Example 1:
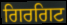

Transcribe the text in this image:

ਗਿਰਗਿਟ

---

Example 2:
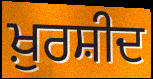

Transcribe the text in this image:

ਖ਼ੁਰਸ਼ੀਦ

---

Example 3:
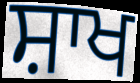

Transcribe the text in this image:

ਸ਼ਾਖ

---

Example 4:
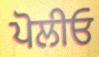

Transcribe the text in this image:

ਪੋਲੀਓ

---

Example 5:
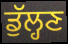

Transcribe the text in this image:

ਡੁੱਲ੍ਹਣ